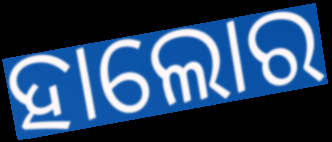
ହାଲୋର